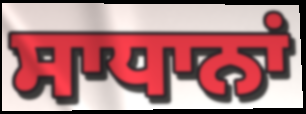
ਸਾਧਾਨਾਂ